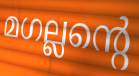
മഗല്ലന്റെ